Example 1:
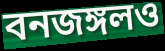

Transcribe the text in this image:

বনজঙ্গলও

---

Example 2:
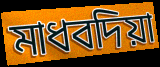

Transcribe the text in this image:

মাধবদিয়া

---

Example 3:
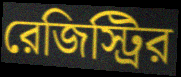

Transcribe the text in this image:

রেজিস্ট্রির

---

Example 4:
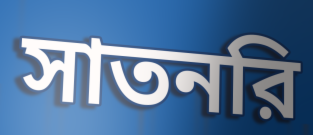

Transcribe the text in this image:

সাতনরি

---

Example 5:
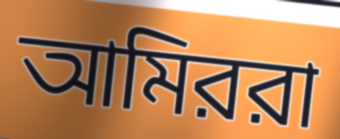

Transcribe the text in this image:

আমিররা